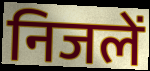
निजलें